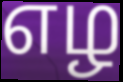
எழ